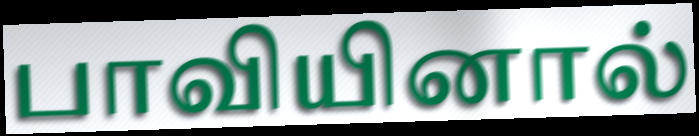
பாவியினால்